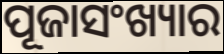
ପୂଜାସଂଖ୍ୟାର